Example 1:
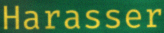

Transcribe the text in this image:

Harasser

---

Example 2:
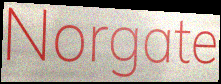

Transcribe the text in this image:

Norgate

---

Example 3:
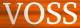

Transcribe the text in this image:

VOSS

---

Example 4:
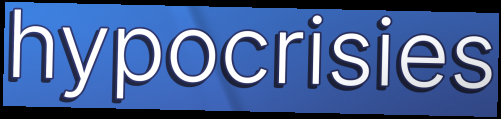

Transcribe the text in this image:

hypocrisies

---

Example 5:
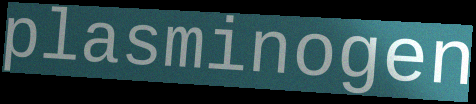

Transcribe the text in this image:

plasminogen